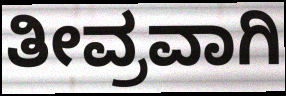
ತೀವ್ರವಾಗಿ